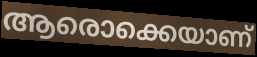
ആരൊക്കെയാണ്